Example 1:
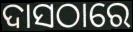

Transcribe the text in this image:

ଦାସଠାରେ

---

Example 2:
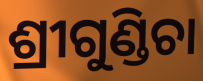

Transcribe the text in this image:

ଶ୍ରୀଗୁଣ୍ଡିଚା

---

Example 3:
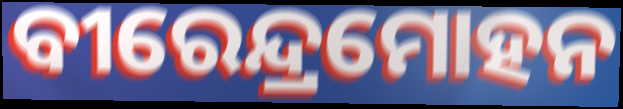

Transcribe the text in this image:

ବୀରେନ୍ଦ୍ରମୋହନ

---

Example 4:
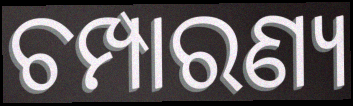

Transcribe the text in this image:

ଚମ୍ପାରଣ୍ୟ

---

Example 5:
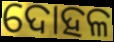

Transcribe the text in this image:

ଦୋହଳ